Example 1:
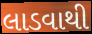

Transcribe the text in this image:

લાડવાથી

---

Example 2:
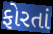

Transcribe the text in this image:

ફોરતાં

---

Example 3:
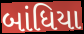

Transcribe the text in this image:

બાંધિયા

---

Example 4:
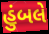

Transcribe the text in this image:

હુંબલે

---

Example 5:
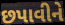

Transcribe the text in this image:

છપાવીને